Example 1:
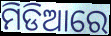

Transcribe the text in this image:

ମିଡିଆରେ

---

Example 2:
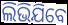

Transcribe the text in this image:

ଲିଭିଯିବେ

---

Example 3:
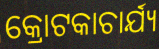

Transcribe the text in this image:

କ୍ରୋଟକାଚାର୍ଯ୍ୟ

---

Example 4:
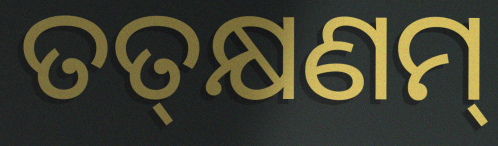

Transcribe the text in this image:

ତତ୍‌କ୍ଷଣମ୍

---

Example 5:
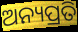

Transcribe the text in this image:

ଅନ୍ୟପ୍ରତି